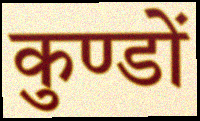
कुण्डों